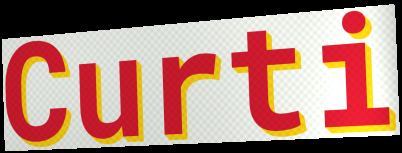
Curti